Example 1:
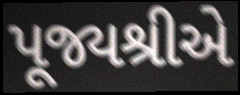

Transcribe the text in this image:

પૂજ્યશ્રીએ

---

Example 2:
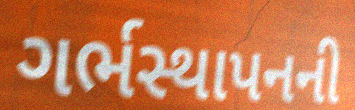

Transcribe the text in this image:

ગર્ભસ્થાપનની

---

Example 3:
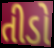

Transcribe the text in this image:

તીડો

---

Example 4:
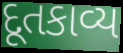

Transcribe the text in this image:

દૂતકાવ્ય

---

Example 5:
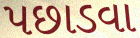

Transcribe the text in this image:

પછાડવા